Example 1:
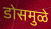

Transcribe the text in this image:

डोसमुळे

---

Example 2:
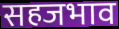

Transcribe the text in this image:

सहजभाव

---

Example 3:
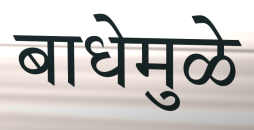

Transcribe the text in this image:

बाधेमुळे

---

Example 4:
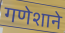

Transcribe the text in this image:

गणेशाने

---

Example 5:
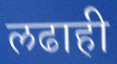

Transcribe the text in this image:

लढाही